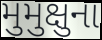
મુમુક્ષુના